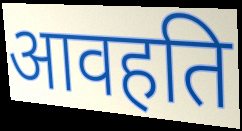
आवहति